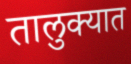
तालुक्यात